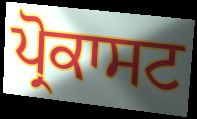
ਪ੍ਰੋਕਾਸਟ